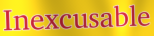
Inexcusable